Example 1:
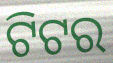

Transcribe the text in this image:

ଟିଟର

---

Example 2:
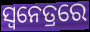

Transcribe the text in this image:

ସ୍ୱନେତ୍ରରେ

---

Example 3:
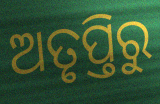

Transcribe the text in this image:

ଅତୃପ୍ତିରୁ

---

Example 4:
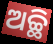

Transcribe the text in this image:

ଅଚ୍ଛି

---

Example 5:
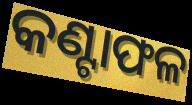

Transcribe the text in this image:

କଣ୍ଟାଫଳ